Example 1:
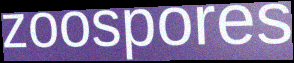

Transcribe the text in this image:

zoospores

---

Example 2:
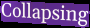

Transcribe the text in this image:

Collapsing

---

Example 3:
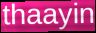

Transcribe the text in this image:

thaayin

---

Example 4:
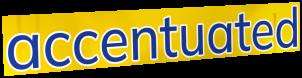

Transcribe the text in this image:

accentuated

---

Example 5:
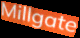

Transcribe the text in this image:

Millgate